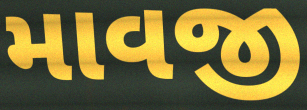
માવજી